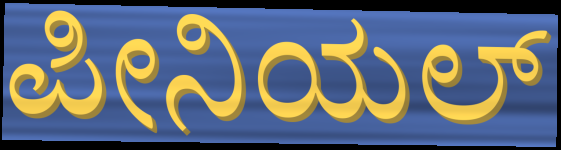
ಪೀನಿಯಲ್